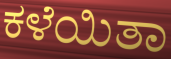
ಕಳೆಯಿತಾ